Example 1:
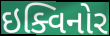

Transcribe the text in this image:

ઇક્વિનોર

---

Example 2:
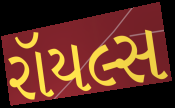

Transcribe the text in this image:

રૉયલ્સ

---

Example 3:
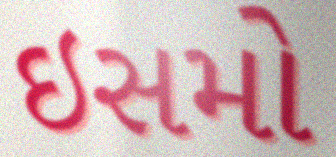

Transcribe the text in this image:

ઇસમો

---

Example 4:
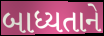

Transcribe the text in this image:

બાધ્યતાને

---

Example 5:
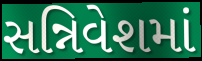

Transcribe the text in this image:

સન્નિવેશમાં